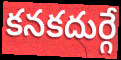
కనకదుర్గే